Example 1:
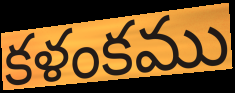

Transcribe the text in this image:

కళంకము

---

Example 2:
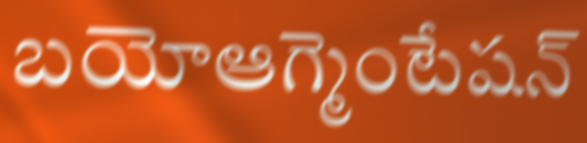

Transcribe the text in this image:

బయోఆగ్మెంటేషన్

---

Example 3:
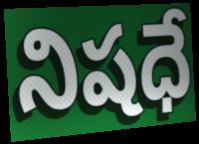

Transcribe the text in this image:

నిషధే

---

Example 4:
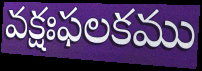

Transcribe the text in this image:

వక్షఃఫలకము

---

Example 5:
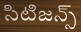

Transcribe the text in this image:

సిటిజన్స్